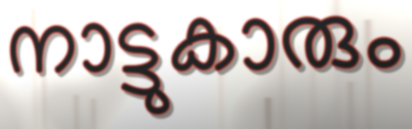
നാട്ടുകാരും